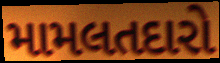
મામલતદારો